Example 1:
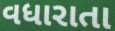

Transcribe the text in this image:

વધારાતા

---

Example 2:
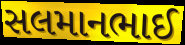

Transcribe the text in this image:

સલમાનભાઈ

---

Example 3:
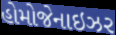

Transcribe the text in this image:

હોમોજેનાઇઝર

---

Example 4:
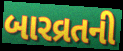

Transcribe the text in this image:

બારવ્રતની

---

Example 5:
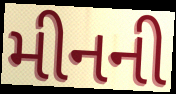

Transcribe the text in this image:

મીનની